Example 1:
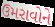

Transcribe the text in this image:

ઉમરાવોને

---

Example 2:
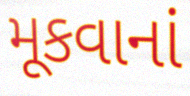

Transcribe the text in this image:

મૂકવાનાં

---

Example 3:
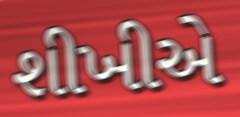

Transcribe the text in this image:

શીખીએ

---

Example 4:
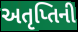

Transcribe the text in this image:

અતૃપ્તિની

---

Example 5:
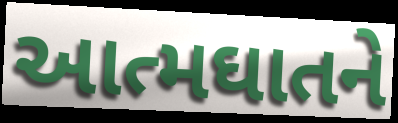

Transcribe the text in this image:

આત્મઘાતને